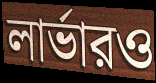
লার্ভারও